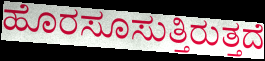
ಹೊರಸೂಸುತ್ತಿರುತ್ತದೆ